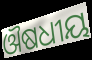
ଔଷଧୀୟ